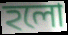
হলো